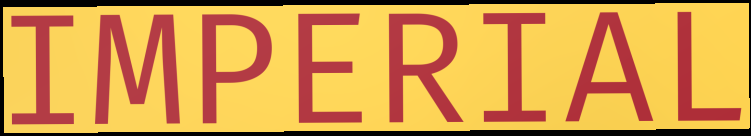
IMPERIAL